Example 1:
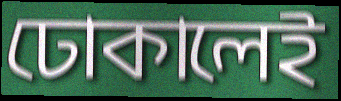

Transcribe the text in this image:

ঢোকালেই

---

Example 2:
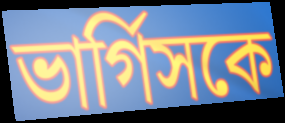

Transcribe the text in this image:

ভার্গিসকে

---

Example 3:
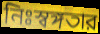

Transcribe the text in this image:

নিঃস্বঙ্গতার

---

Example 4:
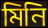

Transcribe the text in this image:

মিনি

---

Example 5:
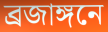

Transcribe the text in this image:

ব্রজাঙ্গনে